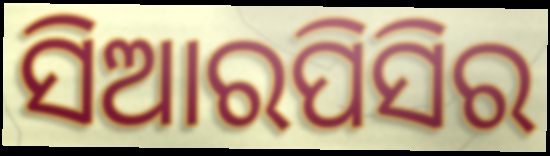
ସିଆରପିସିର